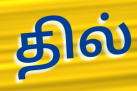
தில்